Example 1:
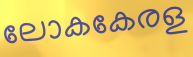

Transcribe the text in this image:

ലോകകേരള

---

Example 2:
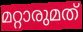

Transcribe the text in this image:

മറ്റാരുമത്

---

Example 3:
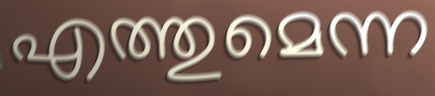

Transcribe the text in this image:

എത്തുമെന്ന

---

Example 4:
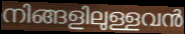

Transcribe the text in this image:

നിങ്ങളിലുള്ളവൻ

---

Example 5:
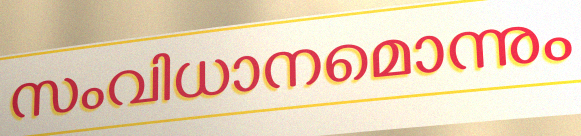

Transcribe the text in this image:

സംവിധാനമൊന്നും